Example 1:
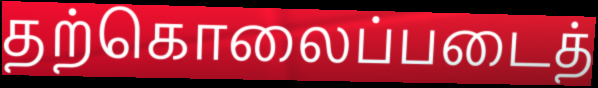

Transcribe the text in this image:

தற்கொலைப்படைத்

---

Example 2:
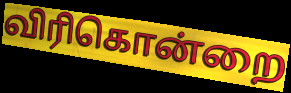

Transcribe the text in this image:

விரிகொன்றை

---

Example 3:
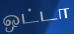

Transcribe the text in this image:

ஒட்டா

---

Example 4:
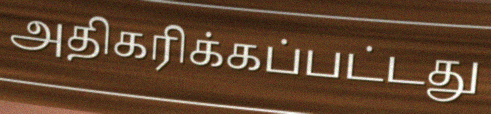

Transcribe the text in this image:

அதிகரிக்கப்பட்டது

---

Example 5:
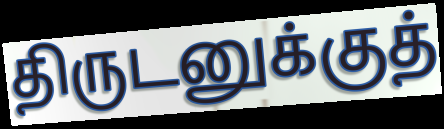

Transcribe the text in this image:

திருடனுக்குத்